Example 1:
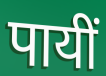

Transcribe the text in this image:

पायीं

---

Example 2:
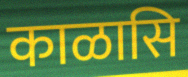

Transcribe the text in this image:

काळासि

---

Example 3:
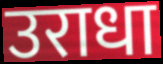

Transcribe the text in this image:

उराधा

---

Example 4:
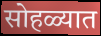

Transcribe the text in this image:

सोहळ्यात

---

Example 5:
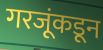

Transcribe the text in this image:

गरजूंकडून